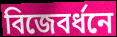
বিজেবর্ধনে